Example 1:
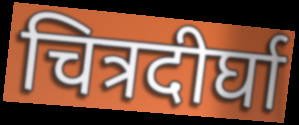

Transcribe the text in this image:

चित्रदीर्घा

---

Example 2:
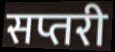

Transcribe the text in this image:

सप्तरी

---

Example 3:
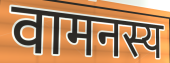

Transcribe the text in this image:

वामनस्य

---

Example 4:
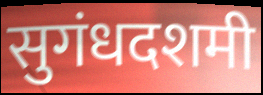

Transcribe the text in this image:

सुगंधदशमी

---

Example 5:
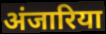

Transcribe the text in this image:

अंजारिया